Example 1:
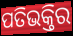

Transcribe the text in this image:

ପତିଭକ୍ତିର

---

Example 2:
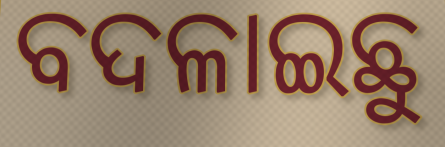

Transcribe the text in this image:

ବଦଳାଇଛୁ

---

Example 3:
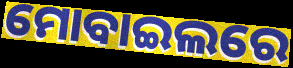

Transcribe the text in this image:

ମୋବାଇଲରେ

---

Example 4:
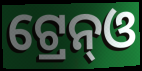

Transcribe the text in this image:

ଟ୍ରେନ୍ଓ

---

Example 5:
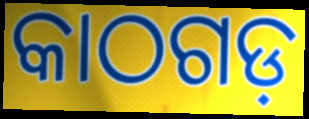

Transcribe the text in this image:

କାଠଗଡ଼